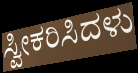
ಸ್ವೀಕರಿಸಿದಳು